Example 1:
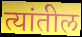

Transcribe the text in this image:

त्‍यांतील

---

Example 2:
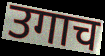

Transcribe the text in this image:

उगाच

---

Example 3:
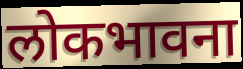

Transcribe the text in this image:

लोकभावना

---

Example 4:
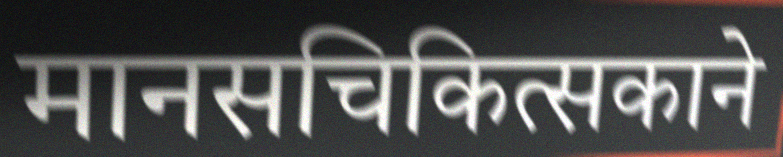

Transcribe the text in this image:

मानसचिकित्सकाने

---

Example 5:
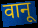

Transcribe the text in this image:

वानू